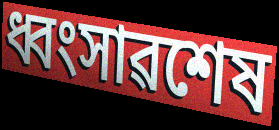
ধ্বংসাৱশেষ